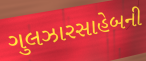
ગુલઝારસાહેબની